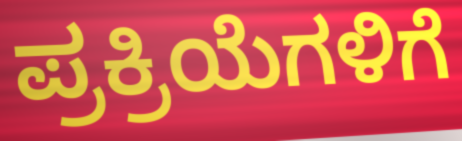
ಪ್ರಕ್ರಿಯೆಗಳಿಗೆ